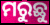
ମରୁଛୁ